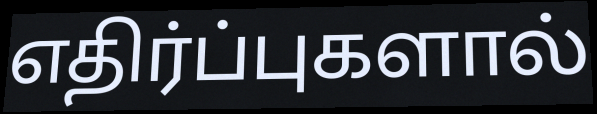
எதிர்ப்புகளால்